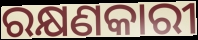
ରକ୍ଷଣକାରୀ